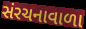
સંરચનાવાળા